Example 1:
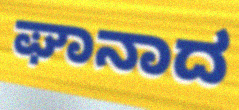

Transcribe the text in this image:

ಘಾನಾದ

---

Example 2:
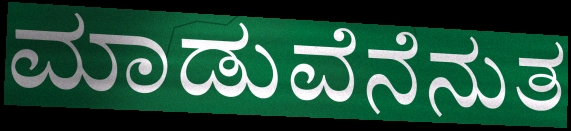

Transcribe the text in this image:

ಮಾಡುವೆನೆನುತ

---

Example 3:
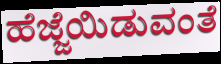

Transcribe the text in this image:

ಹೆಜ್ಜೆಯಿಡುವಂತೆ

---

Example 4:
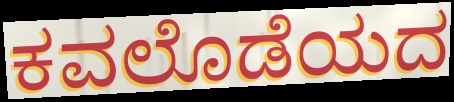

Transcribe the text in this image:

ಕವಲೊಡೆಯದ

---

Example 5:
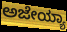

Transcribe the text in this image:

ಅಜೇಯ್ಯಾ